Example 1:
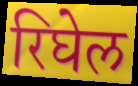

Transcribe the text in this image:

रिघेल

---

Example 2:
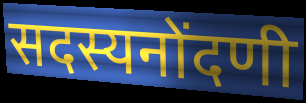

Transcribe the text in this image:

सदस्यनोंदणी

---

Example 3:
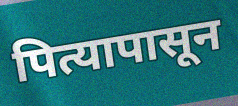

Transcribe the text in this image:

पित्यापासून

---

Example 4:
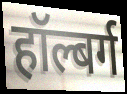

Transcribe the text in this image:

हॉल्बर्ग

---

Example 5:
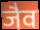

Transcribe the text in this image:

जैव